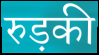
रुड़की